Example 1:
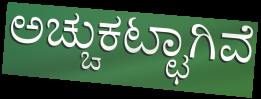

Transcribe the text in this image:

ಅಚ್ಚುಕಟ್ಟಾಗಿವೆ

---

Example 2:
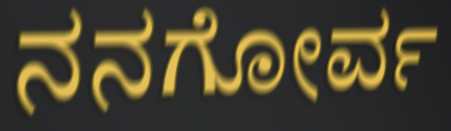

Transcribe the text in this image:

ನನಗೋರ್ವ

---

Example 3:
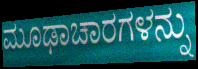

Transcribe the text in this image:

ಮೂಢಾಚಾರಗಳನ್ನು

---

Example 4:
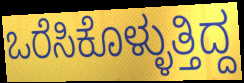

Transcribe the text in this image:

ಒರೆಸಿಕೊಳ್ಳುತ್ತಿದ್ದ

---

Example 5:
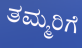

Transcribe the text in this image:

ತಮ್ಮರಿಗೆ